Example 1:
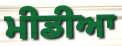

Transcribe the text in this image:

ਮੀਡੀਆ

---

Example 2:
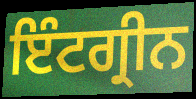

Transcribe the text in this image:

ਇੰਟਗ੍ਰੀਨ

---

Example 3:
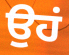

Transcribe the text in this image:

ਉਹਂ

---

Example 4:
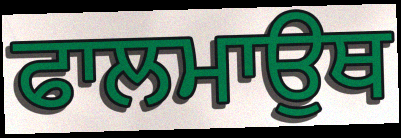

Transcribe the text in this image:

ਫਾਲਮਾਉਥ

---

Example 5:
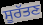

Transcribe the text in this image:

ਸੂਰੱਤਣ